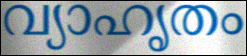
വ്യാഹൃതം